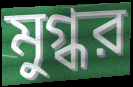
মুগ্ধর